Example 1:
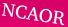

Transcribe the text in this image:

NCAOR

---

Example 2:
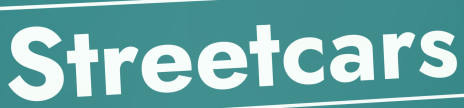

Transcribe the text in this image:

Streetcars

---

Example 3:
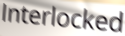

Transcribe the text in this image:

Interlocked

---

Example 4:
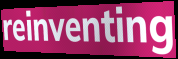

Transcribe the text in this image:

reinventing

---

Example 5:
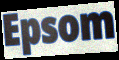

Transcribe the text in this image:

Epsom